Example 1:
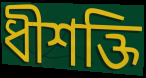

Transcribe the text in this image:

ধীশক্তি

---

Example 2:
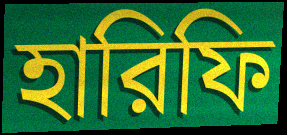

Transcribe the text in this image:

হারিফি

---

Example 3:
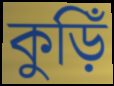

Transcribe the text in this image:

কুড়িঁ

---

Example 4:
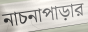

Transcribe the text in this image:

নাচনাপাড়ার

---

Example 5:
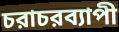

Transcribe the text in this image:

চরাচরব্যাপী